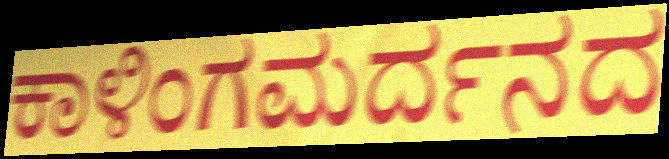
ಕಾಳಿಂಗಮರ್ದನದ